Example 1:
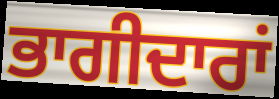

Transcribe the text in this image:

ਭਾਗੀਦਾਰਾਂ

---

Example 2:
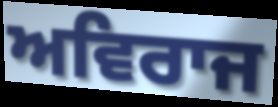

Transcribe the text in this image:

ਅਵਿਰਾਜ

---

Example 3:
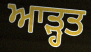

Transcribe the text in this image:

ਆੜ੍ਹਤ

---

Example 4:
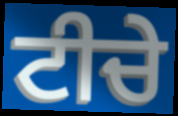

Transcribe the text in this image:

ਟੀਚੇ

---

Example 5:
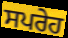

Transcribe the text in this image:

ਸਪਰੇਹ